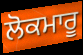
ਲੋਕਮਾਰੂ